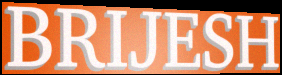
BRIJESH